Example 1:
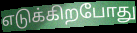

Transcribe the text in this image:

எடுக்கிறபோது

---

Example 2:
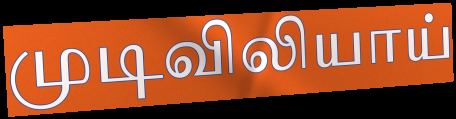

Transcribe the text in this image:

முடிவிலியாய்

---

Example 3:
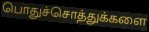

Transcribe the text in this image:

பொதுச்சொத்துக்களை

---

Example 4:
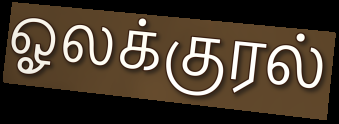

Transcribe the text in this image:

ஓலக்குரல்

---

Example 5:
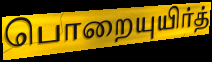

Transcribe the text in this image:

பொறையுயிர்த்